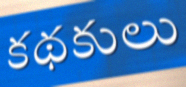
కథకులు